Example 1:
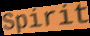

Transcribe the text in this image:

Spirit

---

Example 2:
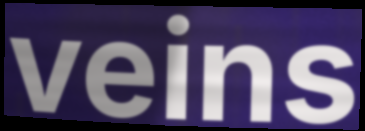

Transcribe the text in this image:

veins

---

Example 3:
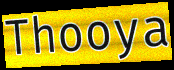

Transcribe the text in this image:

Thooya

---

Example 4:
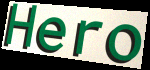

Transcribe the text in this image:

Hero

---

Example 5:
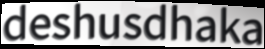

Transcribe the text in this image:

deshusdhaka